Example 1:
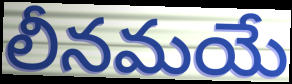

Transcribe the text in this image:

లీనమయే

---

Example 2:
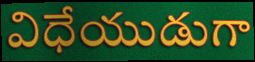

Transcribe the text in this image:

విధేయుడుగా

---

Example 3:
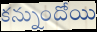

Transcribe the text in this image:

కన్నుందోయి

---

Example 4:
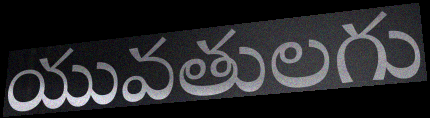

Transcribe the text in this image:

యువతులగు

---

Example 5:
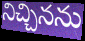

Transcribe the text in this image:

నిచ్చినను